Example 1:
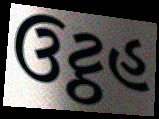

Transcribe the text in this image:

ઉટ્ઠહ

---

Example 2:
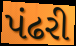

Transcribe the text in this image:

પંઢરી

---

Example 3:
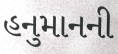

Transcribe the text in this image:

હનુમાનની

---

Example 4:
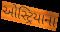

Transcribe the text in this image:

ઓસ્ટ્રિયાના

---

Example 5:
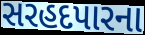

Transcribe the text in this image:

સરહદપારના